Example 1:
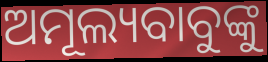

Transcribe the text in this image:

ଅମୂଲ୍ୟବାବୁଙ୍କୁ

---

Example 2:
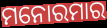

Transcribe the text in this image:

ମନୋରମାର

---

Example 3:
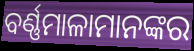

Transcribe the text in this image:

ବର୍ଣ୍ଣମାଳାମାନଙ୍କର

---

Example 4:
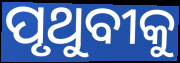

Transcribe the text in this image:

ପୃଥୁବୀକୁ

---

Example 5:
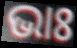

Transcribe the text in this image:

ଭାଃ